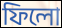
ফিলো